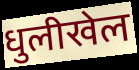
धुलीखेल